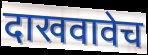
दाखवावेच